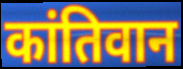
कांतिवान